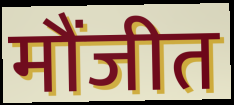
मौंजीत